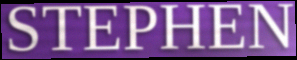
STEPHEN